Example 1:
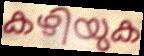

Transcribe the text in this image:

കഴിയുക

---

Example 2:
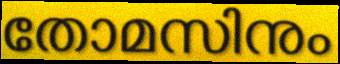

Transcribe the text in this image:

തോമസിനും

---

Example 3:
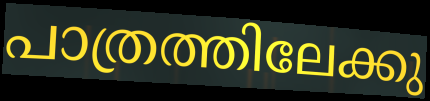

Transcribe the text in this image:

പാത്രത്തിലേക്കു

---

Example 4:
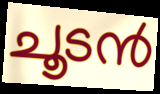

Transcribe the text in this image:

ചൂടൻ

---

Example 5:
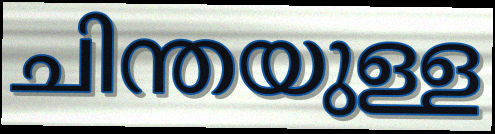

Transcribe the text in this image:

ചിന്തയുള്ള